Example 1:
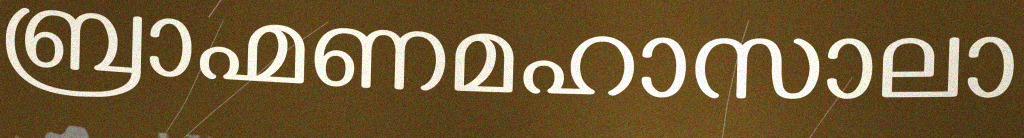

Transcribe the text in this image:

ബ്രാഹ്മണമഹാസാലാ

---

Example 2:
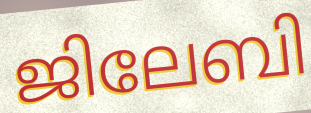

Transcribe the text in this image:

ജിലേബി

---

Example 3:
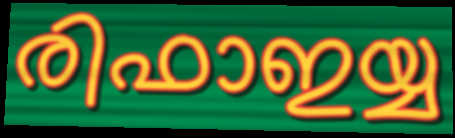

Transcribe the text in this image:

രിഫാഇയ്യ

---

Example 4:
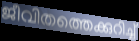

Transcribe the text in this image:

ജീവിതത്തെക്കുറിച്ച്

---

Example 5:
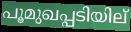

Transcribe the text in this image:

പൂമുഖപ്പടിയില്